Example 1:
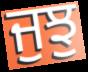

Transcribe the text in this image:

ਜੁਝੁ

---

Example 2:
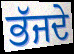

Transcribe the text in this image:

ਭੱਜਦੇ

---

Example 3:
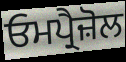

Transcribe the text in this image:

ਓਮਪ੍ਰੈਜ਼ੋਲ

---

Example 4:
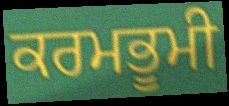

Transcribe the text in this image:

ਕਰਮਭੂਮੀ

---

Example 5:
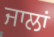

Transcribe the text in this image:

ਜਾਲਾਂ